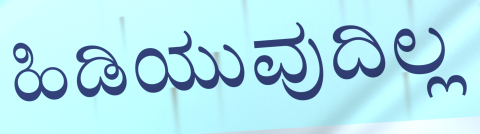
ಹಿಡಿಯುವುದಿಲ್ಲ